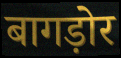
बागड़ोर